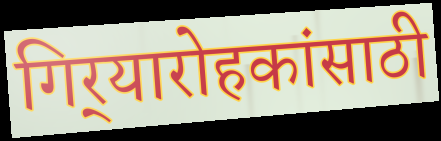
गिर्यारोहकांसाठी